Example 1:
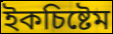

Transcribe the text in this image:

ইকচিষ্টেম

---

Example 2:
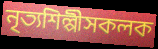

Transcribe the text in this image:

নৃত্যশিল্পীসকলক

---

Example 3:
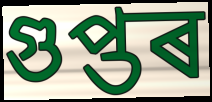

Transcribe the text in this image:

গুপ্তৰ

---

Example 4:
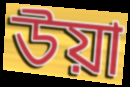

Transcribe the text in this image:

উয়া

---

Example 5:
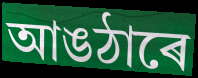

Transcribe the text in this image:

আঙঠাৰে